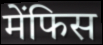
मेंफिस